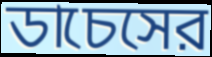
ডাচেসের